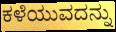
ಕಳೆಯುವದನ್ನು